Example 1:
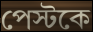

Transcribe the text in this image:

পেস্টকে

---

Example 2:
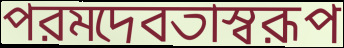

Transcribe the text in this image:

পরমদেবতাস্বরূপ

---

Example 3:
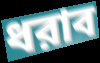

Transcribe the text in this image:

ধরাব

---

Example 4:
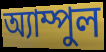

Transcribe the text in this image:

অ্যাম্পুল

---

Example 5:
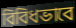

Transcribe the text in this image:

বিবিধভাবে